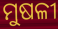
ମୁଷଳୀ